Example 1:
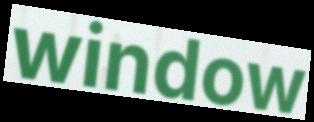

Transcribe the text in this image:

window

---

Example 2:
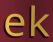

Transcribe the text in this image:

ek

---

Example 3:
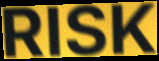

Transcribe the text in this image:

RISK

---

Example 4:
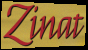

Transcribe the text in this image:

Zinat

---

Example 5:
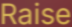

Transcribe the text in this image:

Raise